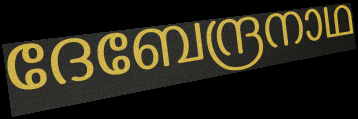
ദേബേന്ദ്രനാഥ